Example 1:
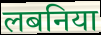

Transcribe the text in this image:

लबनिया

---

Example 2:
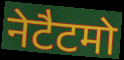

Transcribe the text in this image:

नेटैटमो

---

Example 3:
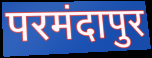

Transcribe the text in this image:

परमंदापुर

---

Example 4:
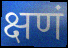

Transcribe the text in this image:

क्षणं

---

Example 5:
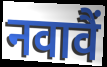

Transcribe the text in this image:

नवावैं